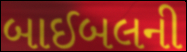
બાઈબલની